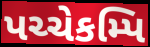
પચ્ચેકમ્પિ